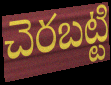
చెరబట్టి